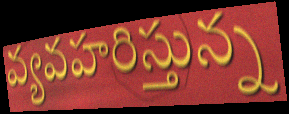
వ్యవహరిస్తున్న